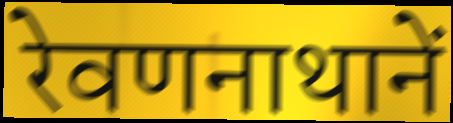
रेवणनाथानें